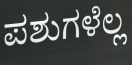
ಪಶುಗಳೆಲ್ಲ